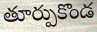
తూర్పుకొండ